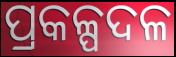
ପ୍ରକଳ୍ପଦଳ